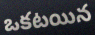
ఒకటయిన